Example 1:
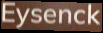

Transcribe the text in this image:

Eysenck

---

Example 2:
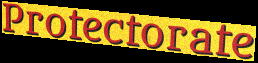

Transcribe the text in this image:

Protectorate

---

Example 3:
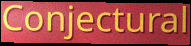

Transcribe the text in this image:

Conjectural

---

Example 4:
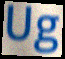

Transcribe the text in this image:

Ug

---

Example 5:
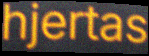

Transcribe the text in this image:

hjertas